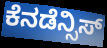
ಕೆನಡೆನ್ಸಿಸ್